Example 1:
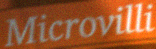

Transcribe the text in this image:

Microvilli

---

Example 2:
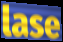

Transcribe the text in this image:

lase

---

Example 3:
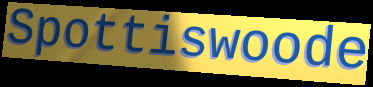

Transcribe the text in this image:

Spottiswoode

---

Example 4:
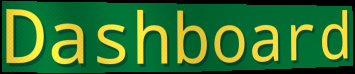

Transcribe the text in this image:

Dashboard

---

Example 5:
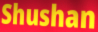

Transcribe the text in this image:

Shushan